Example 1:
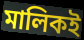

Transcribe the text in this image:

মালিকই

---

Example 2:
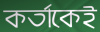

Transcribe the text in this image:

কর্তাকেই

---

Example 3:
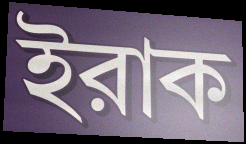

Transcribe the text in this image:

ইরাক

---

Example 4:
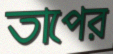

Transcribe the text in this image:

তাপের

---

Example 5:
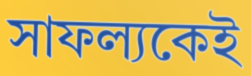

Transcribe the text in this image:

সাফল্যকেই